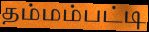
தம்மம்பட்டி